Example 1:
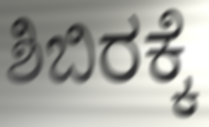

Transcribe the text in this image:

ಶಿಬಿರಕ್ಕೆ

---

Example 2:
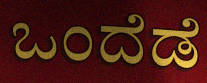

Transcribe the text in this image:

ಒಂದೆಡೆ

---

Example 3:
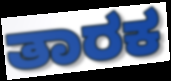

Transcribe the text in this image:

ತಾರಕ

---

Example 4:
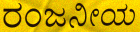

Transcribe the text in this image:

ರಂಜನೀಯ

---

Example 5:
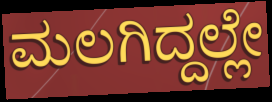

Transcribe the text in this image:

ಮಲಗಿದ್ದಲ್ಲೇ